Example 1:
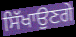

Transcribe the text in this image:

ਸਿੱਖਾਉਣਗੇ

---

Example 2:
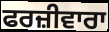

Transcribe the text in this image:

ਫਰਜ਼ੀਵਾਰਾ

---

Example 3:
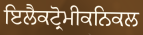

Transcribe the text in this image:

ਇਲੈਕਟ੍ਰੋਮੀਕਨਿਕਲ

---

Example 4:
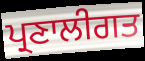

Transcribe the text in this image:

ਪ੍ਰਣਾਲੀਗਤ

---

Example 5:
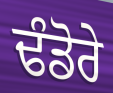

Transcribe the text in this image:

ਢੰਡੋਰੇ